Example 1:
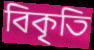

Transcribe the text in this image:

বিকৃতি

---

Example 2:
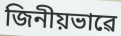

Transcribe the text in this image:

জিনীয়ভাৱে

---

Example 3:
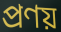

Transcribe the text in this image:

প্ৰণয়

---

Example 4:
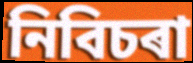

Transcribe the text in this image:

নিবিচৰা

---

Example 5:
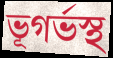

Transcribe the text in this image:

ভূগৰ্ভস্থ